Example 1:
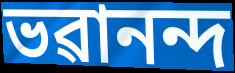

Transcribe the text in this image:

ভৱানন্দ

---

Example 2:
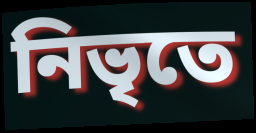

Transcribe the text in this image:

নিভৃতে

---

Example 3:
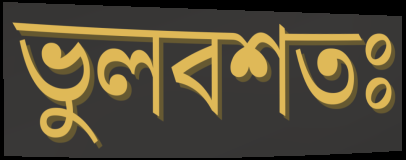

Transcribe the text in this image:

ভুলবশতঃ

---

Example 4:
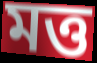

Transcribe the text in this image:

মত্ত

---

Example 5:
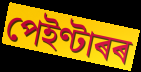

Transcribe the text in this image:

পেইণ্টাৰৰ